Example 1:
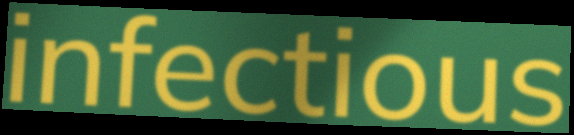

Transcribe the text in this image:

infectious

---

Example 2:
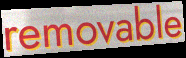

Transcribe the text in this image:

removable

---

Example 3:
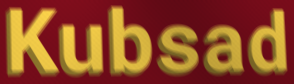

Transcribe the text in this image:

Kubsad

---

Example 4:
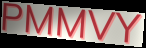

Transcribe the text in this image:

PMMVY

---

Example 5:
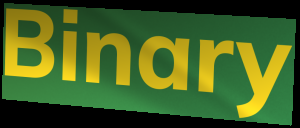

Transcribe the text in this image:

Binary